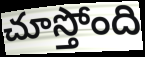
చూస్తోంది